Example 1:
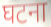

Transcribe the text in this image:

घटना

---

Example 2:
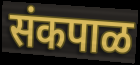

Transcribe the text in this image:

संकपाळ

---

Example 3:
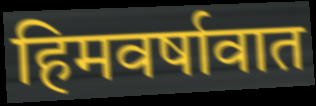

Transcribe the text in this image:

हिमवर्षावात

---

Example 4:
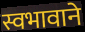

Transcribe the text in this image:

स्वभावाने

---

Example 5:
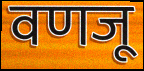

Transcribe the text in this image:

वणजू